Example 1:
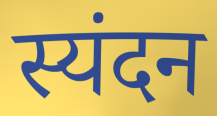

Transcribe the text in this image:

स्यंदन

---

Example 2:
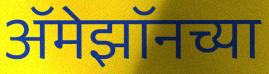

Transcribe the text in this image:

ॲमेझॉनच्या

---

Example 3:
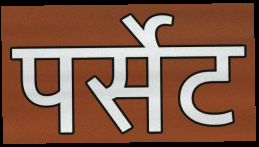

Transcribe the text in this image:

पर्सेट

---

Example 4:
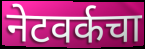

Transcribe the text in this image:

नेटवर्कचा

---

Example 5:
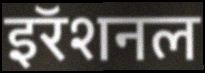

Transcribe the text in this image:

इरॅशनल